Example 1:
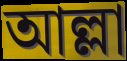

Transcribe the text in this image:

আল্লা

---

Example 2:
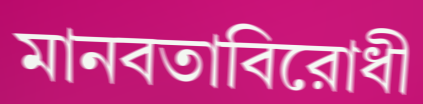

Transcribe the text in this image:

মানবতাবিরোধী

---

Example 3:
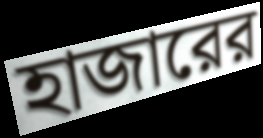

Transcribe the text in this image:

হাজারের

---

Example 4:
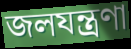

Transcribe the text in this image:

জলযন্ত্রণা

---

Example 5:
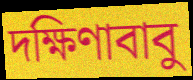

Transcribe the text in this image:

দক্ষিণাবাবু